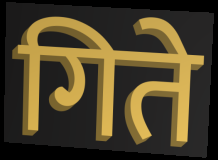
गिते